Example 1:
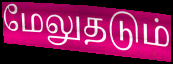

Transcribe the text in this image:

மேலுதடும்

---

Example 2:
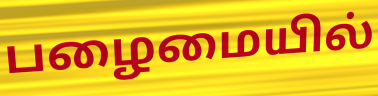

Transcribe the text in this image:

பழைமையில்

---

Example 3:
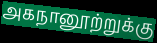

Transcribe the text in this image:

அகநானூற்றுக்கு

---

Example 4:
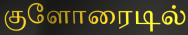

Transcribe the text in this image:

குளோரைடில்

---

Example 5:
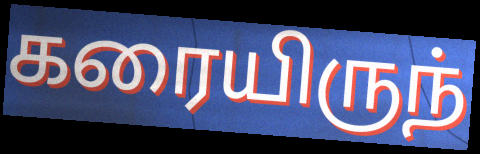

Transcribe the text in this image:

கரையிருந்